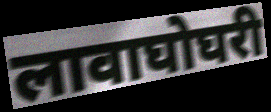
लावाघोघरी